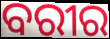
ବରୀର